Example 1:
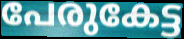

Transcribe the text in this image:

പേരുകേട്ട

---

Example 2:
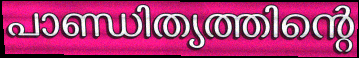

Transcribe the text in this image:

പാണ്ഡിത്യത്തിന്റെ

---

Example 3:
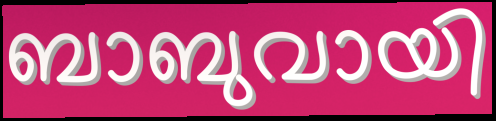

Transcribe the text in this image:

ബാബുവായി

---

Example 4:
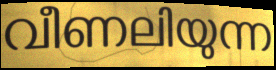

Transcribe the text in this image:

വീണലിയുന്ന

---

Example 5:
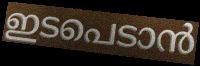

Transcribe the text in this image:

ഇടപെടാൻ